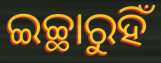
ଇଚ୍ଛାରୁହିଁ